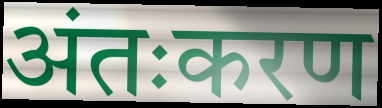
अंतःकरण